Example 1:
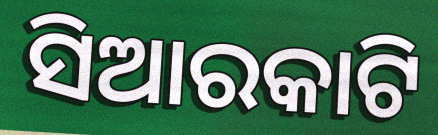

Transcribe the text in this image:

ସିଆରକାଟି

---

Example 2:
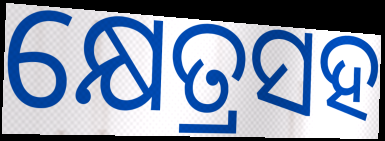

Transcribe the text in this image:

କ୍ଷେତ୍ରସହ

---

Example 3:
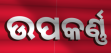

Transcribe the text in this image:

ଉପକର୍ଣ୍ଣ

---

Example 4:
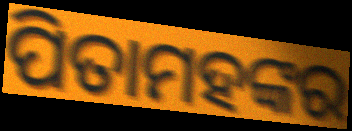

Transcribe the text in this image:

ପିତାମହଙ୍କର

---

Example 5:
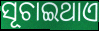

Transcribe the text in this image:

ସୂଚାଇଥାଏ